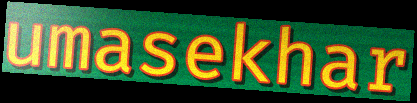
umasekhar